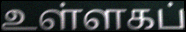
உள்ளகப்